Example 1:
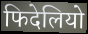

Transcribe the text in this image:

फिदेलियो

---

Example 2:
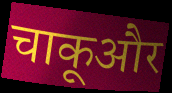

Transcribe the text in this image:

चाकूऔर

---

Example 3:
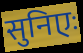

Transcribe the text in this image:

सुनिएः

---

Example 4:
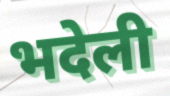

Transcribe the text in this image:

भदेली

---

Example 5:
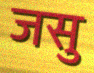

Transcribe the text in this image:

जसु